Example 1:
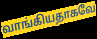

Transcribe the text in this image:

வாங்கியதாகவே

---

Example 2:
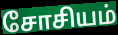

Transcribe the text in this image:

சோசியம்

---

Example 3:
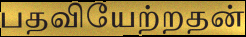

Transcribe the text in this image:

பதவியேற்றதன்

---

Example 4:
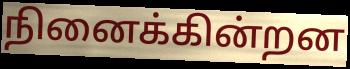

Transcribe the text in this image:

நினைக்கின்றன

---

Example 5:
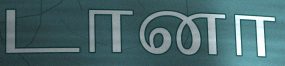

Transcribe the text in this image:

டானா